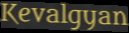
Kevalgyan